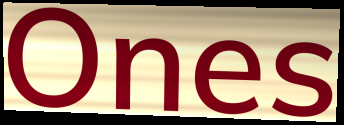
Ones